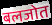
बलजोत